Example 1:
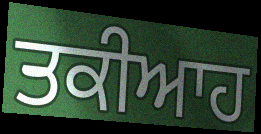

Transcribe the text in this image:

ਤਕੀਆਹ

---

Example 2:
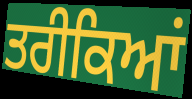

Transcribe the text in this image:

ਤਰੀਕਿਆਂ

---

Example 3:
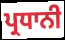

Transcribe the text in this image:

ਪ੍ਰਧਾਨੀ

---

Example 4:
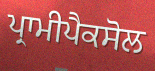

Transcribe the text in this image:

ਪ੍ਰਾਮੀਪੈਕਸੋਲ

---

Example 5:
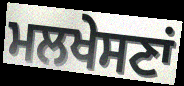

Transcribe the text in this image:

ਮਲਖੇਸਣਾਂ